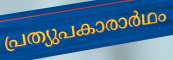
പ്രത്യുപകാരാർഥം